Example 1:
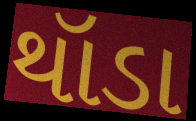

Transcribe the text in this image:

થૉડા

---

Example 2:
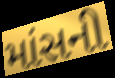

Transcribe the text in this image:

માંસની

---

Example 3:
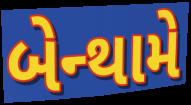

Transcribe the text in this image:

બેન્થામે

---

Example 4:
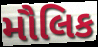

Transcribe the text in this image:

મૌલિક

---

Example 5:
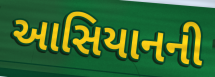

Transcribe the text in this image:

આસિયાનની